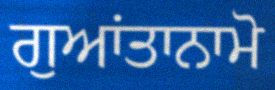
ਗੁਆਂਤਾਨਾਮੋ